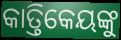
କାତ୍ତିକେୟଙ୍କୁ